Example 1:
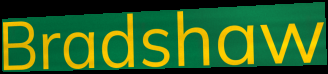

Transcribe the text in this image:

Bradshaw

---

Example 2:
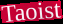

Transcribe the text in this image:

Taoist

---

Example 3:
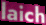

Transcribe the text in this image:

laich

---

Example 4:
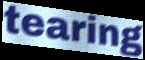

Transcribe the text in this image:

tearing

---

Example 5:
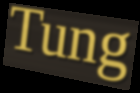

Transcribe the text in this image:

Tung